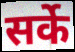
सर्के